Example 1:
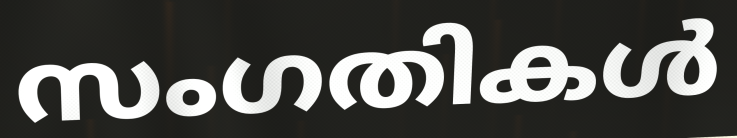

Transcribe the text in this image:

സംഗതികൾ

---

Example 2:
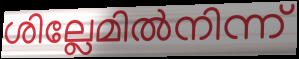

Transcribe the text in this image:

ശില്ലേമിൽനിന്ന്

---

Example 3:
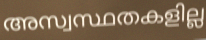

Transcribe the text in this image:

അസ്വസ്ഥതകളില്ല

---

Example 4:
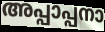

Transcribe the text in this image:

അപ്പാപ്പനാ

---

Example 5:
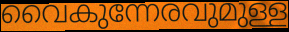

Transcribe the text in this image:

വൈകുന്നേരവുമുള്ള